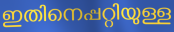
ഇതിനെപ്പറ്റിയുള്ള